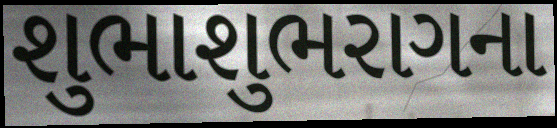
શુભાશુભરાગના